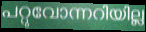
പറ്റുവോന്നറിയില്ല